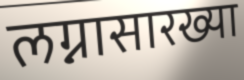
लग्नासारख्या